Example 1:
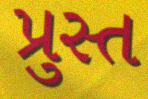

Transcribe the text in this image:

પ્રુસ્ત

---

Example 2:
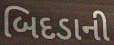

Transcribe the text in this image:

બિદડાની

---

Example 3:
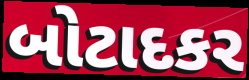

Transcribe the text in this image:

બોટાદકર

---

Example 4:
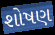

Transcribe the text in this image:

શોષણ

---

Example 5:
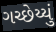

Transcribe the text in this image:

ગચ્છેય્યું